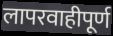
लापरवाहीपूर्ण